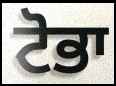
ਟੋਭਾ